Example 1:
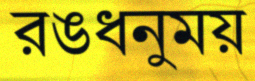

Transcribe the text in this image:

রঙধনুময়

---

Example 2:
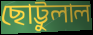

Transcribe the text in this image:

ছোট্টুলাল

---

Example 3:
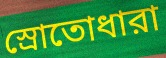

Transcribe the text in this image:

স্রোতোধারা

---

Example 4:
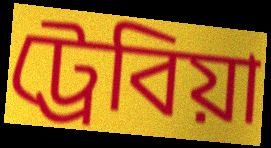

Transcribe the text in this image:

ট্রেবিয়া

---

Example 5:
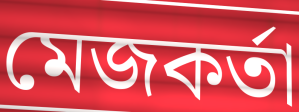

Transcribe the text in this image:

মেজকর্তা